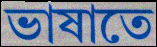
ভাষাতে